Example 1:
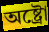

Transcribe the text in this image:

অষ্ট্ৰো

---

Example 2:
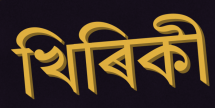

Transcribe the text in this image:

খিৰিকী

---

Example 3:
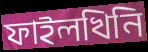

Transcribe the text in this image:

ফাইলখিনি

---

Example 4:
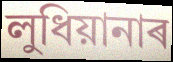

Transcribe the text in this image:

লুধিয়ানাৰ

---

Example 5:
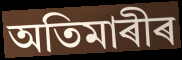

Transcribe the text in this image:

অতিমাৰীৰ